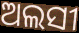
ଅଲସୀ